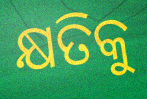
କ୍ଷତିକୁ